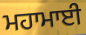
ਮਹਾਮਾਈ